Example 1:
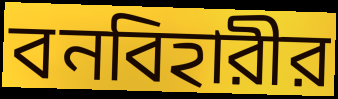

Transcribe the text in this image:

বনবিহারীর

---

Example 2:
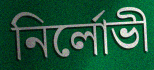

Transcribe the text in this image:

নির্লোভী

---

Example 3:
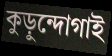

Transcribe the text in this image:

কুড়ুন্দোগাই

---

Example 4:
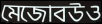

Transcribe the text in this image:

মেজোবউও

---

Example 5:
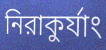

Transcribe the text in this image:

নিরাকুর্যাং